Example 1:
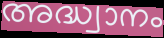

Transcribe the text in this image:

അദ്ധ്വാനം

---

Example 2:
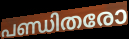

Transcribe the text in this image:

പണ്ഡിതരോ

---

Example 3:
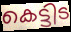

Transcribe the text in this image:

കെട്ടിട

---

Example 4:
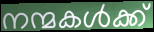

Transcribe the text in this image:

നന്മകൾക്ക്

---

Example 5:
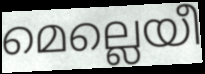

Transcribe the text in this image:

മെല്ലെയീ